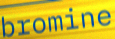
bromine